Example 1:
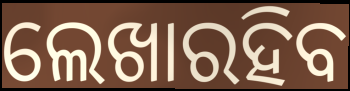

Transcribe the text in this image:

ଲେଖାରହିବ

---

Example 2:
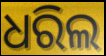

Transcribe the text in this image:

ଧରିଲ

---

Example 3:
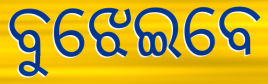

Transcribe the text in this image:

ବୁଝେଇବେ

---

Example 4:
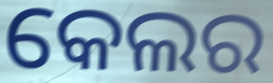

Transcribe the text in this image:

କେଲର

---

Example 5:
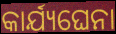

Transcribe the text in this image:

କାର୍ଯ୍ୟଘେନା